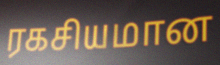
ரகசியமான